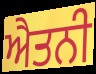
ਐਤਨੀ